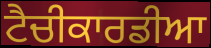
ਟੈਚੀਕਾਰਡੀਆ